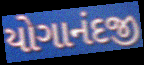
યોગાનંદજી